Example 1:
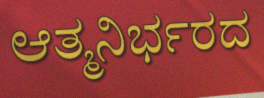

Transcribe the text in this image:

ಆತ್ಮನಿರ್ಭರದ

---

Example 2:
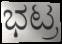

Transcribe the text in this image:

ಭಟ್ರ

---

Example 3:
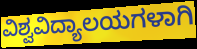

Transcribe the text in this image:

ವಿಶ್ವವಿದ್ಯಾಲಯಗಳಾಗಿ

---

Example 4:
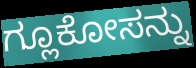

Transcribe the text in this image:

ಗ್ಲೂಕೋಸನ್ನು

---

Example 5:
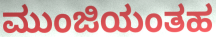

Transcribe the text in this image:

ಮುಂಜಿಯಂತಹ